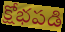
క్షోభపడి